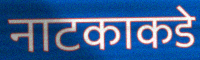
नाटकाकडे